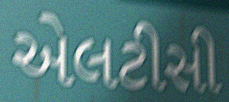
એલટીસી